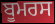
ਬੂਮਰਸ